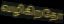
வழிகிறதோ